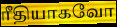
ரீதியாகவோ